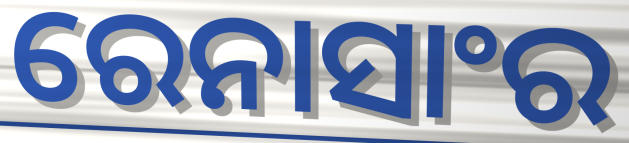
ରେନାସାଂର